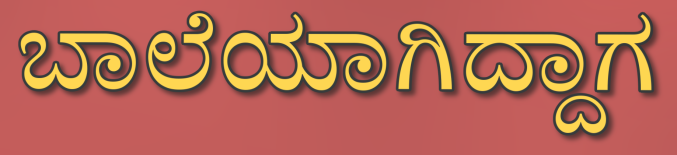
ಬಾಲೆಯಾಗಿದ್ದಾಗ